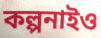
কল্পনাইও